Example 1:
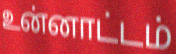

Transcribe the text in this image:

உன்னாட்டம்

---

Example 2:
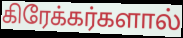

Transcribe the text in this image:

கிரேக்கர்களால்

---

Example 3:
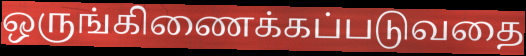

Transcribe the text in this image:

ஒருங்கிணைக்கப்படுவதை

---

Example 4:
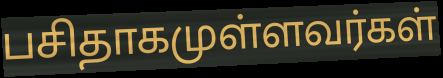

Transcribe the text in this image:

பசிதாகமுள்ளவர்கள்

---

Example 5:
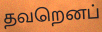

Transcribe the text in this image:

தவறெனப்